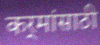
कर्मांसाठी